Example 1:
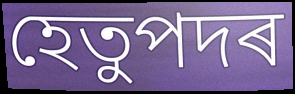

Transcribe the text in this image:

হেতুপদৰ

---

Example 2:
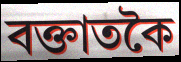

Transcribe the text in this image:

বক্তাতকৈ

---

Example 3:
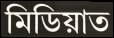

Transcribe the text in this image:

মিডিয়াত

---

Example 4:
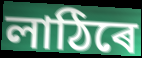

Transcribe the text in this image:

লাঠিৰে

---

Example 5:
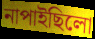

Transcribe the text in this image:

নাপাইছিলো